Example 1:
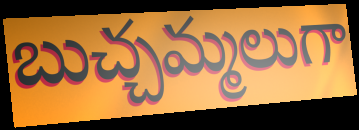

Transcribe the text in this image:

బుచ్చమ్మలుగా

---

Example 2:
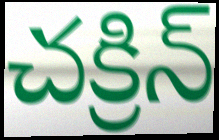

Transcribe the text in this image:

చక్రిన్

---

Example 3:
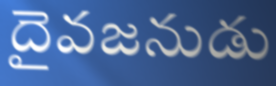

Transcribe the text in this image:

దైవజనుడు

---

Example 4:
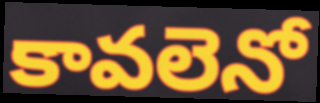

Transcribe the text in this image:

కావలెనో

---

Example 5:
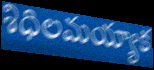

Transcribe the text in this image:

శిధిలమయ్యాక